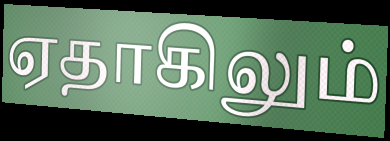
ஏதாகிலும்